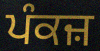
ਪੰਕਜ਼